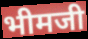
भीमजी